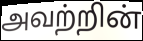
அவற்றின்